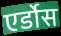
एर्डोस